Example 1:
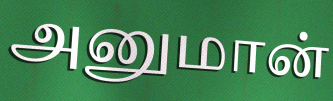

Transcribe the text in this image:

அனுமான்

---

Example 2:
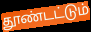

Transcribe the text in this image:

தூண்டட்டும்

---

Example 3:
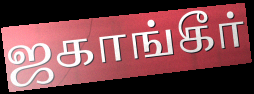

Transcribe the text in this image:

ஜகாங்கீர்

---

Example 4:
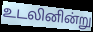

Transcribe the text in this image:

உடலினின்று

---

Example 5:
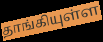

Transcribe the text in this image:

தாங்கியுள்ள